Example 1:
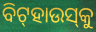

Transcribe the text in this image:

ବିଟ୍‌ହାଉସ୍‌କୁ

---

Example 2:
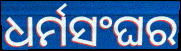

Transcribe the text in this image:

ଧର୍ମସଂଘର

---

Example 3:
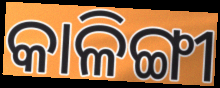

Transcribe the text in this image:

କାଳିଙ୍ଗୀ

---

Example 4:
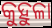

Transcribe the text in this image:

କୁହୁଳା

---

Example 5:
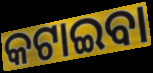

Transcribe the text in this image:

କଟାଇବା